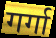
गर्गा